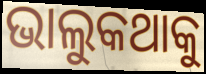
ଭାଲୁକଥାକୁ